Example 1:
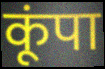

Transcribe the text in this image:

कूंपा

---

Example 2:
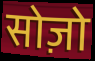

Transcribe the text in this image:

सोज़ो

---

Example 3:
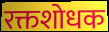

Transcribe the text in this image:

रक्तशोधक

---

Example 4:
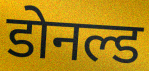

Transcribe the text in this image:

डोनल्‍ड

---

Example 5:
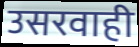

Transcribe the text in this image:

उसरवाही